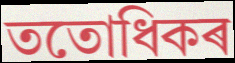
ততোধিকৰ